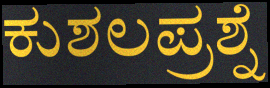
ಕುಶಲಪ್ರಶ್ನೆ